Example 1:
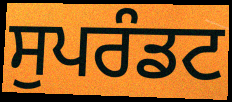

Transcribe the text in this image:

ਸੁਪਰੰਡਟ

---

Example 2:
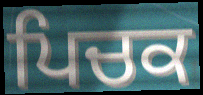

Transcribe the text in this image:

ਪਿਚਕ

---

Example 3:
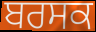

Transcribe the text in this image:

ਬਰਸਕ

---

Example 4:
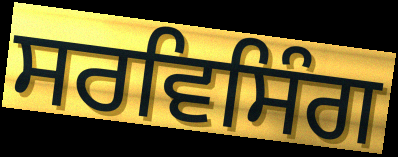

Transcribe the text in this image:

ਸਰਵਿਸਿੰਗ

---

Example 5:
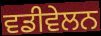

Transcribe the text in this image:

ਵਡੀਵੇਲਨ